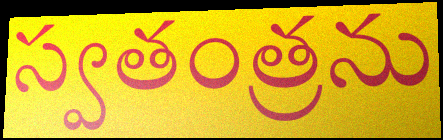
స్వతంత్రను